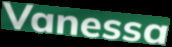
Vanessa